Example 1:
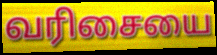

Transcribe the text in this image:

வரிசையை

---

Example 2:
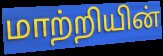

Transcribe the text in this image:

மாற்றியின்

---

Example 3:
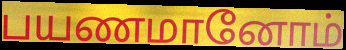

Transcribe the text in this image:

பயணமானோம்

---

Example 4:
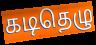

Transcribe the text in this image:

கடிதெழு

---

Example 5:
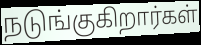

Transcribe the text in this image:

நடுங்குகிறார்கள்